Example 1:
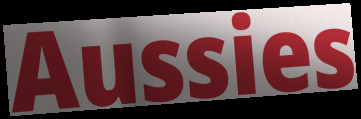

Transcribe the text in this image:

Aussies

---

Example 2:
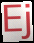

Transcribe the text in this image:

Ej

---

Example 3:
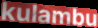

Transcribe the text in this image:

kulambu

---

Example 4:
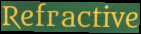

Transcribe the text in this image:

Refractive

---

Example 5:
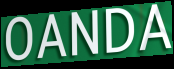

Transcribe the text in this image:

OANDA